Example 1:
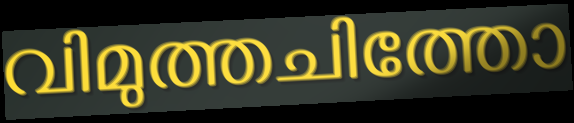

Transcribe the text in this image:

വിമുത്തചിത്തോ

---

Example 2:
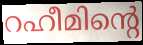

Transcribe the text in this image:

റഹീമിന്റെ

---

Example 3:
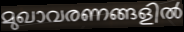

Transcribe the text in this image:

മുഖാവരണങ്ങളിൽ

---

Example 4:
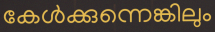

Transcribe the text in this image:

കേൾക്കുന്നെങ്കിലും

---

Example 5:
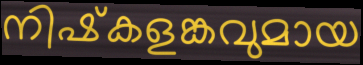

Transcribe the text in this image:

നിഷ്‌കളങ്കവുമായ